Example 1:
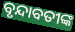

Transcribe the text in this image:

ବୃନ୍ଦାବତୀଙ୍କ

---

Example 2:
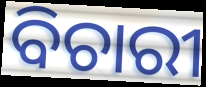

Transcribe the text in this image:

ବିଚାରୀ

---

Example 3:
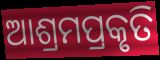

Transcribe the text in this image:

ଆଶ୍ରମପ୍ରକୃତି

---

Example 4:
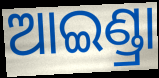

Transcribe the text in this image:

ଆଇଣ୍ଡ୍ରା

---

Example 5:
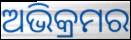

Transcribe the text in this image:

ଅଭିକ୍ରମର